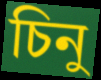
চিনু